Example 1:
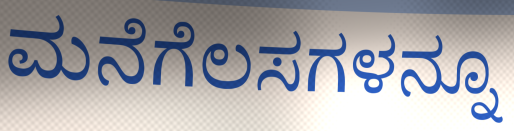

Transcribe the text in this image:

ಮನೆಗೆಲಸಗಳನ್ನೂ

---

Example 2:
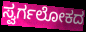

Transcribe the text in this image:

ಸ್ವರ್ಗಲೋಕದ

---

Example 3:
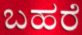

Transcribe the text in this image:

ಬಹರೆ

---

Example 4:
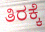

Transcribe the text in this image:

ತಿರಕ್ಕೆ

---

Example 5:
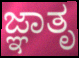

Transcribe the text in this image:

ಜ್ಞಾತೃ